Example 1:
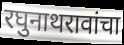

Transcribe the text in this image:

रघुनाथरावांचा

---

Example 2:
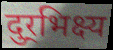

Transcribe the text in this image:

दुर्भिक्ष्य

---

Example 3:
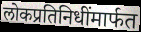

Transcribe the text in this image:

लोकप्रतिनिधींमार्फत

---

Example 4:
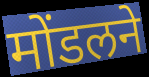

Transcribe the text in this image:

मोंडलने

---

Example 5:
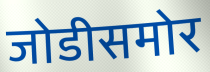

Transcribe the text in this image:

जोडीसमोर